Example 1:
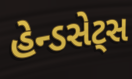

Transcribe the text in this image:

હેન્ડસેટ્સ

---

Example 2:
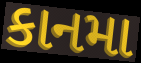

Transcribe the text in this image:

કાનમા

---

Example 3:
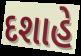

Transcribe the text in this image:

દશાહે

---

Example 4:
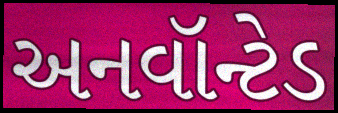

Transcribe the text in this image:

અનવૉન્ટેડ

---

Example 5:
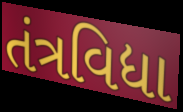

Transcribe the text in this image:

તંત્રવિદ્યા